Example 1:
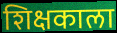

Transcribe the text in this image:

शिक्षकाला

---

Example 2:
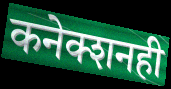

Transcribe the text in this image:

कनेक्शनही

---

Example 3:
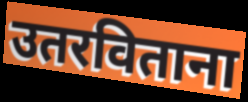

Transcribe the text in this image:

उतरविताना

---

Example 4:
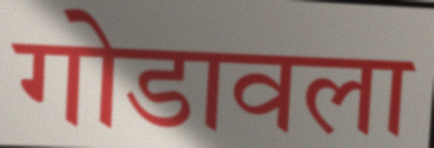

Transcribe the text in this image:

गोडावला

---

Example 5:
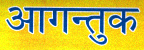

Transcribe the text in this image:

आगन्तुक